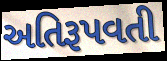
અતિરૂપવતી